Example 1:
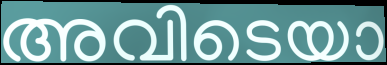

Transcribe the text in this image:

അവിടെയാ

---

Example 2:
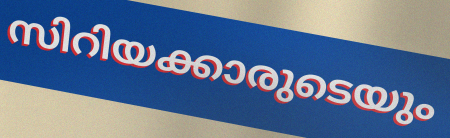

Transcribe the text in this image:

സിറിയക്കാരുടെയും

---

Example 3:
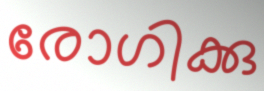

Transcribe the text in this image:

രോഗിക്കു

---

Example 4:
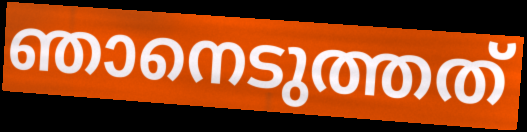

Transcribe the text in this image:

ഞാനെടുത്തത്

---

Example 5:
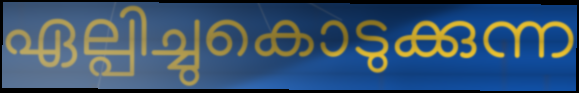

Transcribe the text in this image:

ഏല്പിച്ചുകൊടുക്കുന്ന